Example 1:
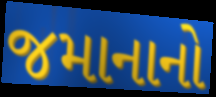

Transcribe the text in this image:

જમાનાનો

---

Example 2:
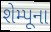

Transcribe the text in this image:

શેમ્પૂના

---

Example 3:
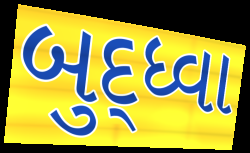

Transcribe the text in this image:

બુદ્ધ્વા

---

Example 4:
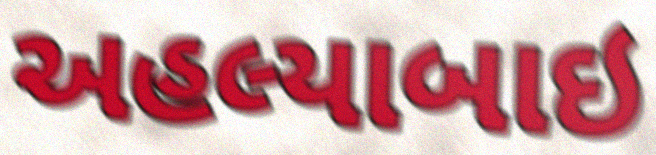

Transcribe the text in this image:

અહલ્યાબાઇ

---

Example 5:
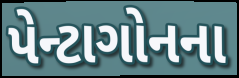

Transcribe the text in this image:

પેન્ટાગોનના